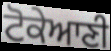
ਟੋਕੇਆਣੀ